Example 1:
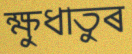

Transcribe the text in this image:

ক্ষুধাতুৰ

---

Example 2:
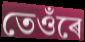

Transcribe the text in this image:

তেওঁৰে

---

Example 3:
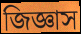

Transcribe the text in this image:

জিজ্ঞাস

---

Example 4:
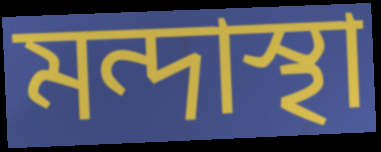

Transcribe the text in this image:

মন্দাস্থা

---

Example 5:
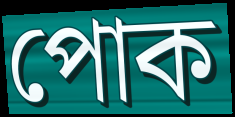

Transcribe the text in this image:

পোক